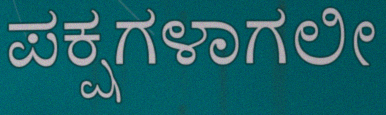
ಪಕ್ಷಗಳಾಗಲೀ